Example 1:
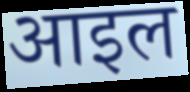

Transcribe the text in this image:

आइल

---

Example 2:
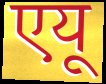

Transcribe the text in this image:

एयू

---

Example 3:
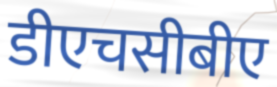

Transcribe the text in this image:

डीएचसीबीए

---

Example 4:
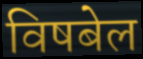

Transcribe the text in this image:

विषबेल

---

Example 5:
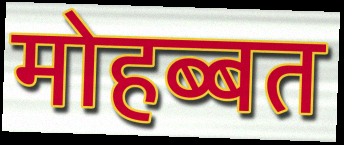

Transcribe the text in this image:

मोहब्बत